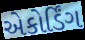
એકોર્ડિંગ